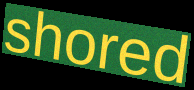
shored